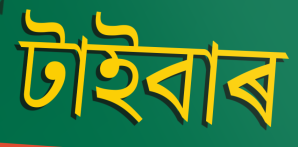
টাইবাৰ